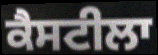
ਕੈਸਟੀਲਾ